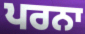
ਪਰਨਾ